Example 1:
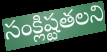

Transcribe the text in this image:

సంక్లిష్టతలని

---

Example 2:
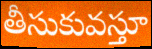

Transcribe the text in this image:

తీసుకువస్తూ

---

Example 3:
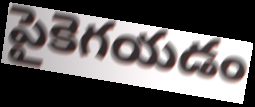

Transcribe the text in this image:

పైకెగయడం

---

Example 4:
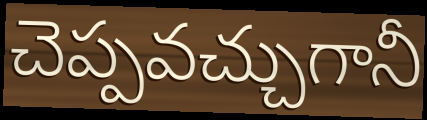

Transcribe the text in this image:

చెప్పవచ్చుగానీ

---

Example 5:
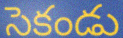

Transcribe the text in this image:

సెకండు